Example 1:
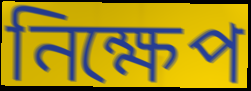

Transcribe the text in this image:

নিক্ষেপ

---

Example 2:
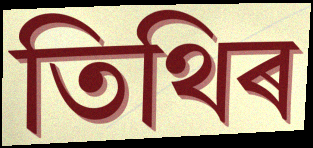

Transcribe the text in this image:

তিথিৰ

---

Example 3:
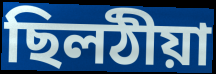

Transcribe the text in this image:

ছিলঠীয়া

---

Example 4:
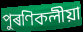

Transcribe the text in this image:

পুৰণিকলীয়া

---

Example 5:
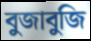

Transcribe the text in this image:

বুজাবুজি